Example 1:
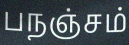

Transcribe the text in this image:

பநஞ்சம்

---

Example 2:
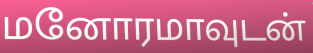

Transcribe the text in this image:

மனோரமாவுடன்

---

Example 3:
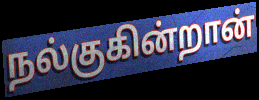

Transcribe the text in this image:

நல்குகின்றான்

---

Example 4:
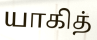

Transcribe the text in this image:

யாகித்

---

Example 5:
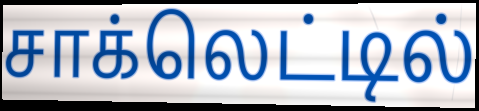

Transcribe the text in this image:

சாக்லெட்டில்